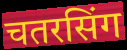
चतरसिंग